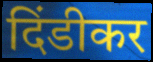
दिंडीकर